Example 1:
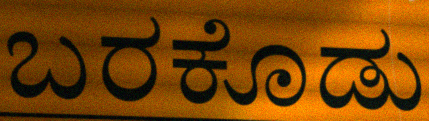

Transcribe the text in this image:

ಬರಕೊಡು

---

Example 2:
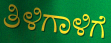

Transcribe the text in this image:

ತಿಳಿಗಾಳಿಗೆ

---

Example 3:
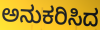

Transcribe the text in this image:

ಅನುಕರಿಸಿದ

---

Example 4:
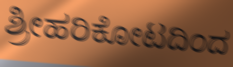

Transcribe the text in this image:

ಶ್ರೀಹರಿಕೋಟದಿಂದ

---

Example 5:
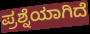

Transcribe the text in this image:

ಪ್ರಶ್ನೆಯಾಗಿದೆ